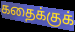
கதைக்குக்